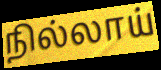
நில்லாய்